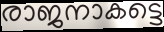
രാജനാകട്ടെ